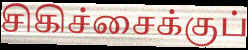
சிகிச்சைக்குப்